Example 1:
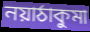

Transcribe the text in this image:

নয়াঠাকুমা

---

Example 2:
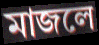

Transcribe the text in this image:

মাজলে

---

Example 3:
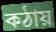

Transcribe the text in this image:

কঠায়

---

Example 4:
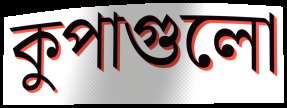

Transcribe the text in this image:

কুপাগুলো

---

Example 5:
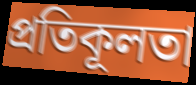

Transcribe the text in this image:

প্রতিকূলতা